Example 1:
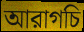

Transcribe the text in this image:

আরাগচি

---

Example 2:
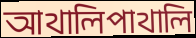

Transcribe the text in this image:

আথালিপাথালি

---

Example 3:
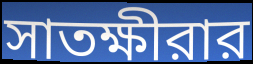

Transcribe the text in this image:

সাতক্ষীরার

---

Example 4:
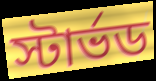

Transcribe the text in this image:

স্টার্ভড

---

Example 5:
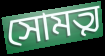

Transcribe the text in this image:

সোমত্ম